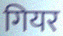
गियर